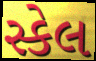
સ્કેલ